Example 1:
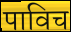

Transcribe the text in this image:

पाविच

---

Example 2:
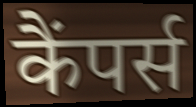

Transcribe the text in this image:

कैंपर्स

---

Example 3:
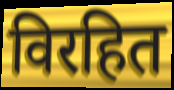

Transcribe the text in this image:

विरहित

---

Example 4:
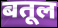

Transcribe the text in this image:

बतूल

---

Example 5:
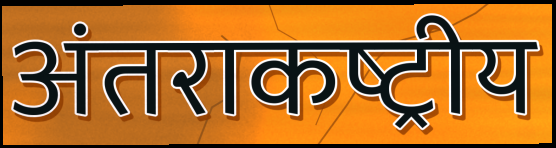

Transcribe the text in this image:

अंतराकष्ट्रीय